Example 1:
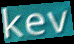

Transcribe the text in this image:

kev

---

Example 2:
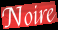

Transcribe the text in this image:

Noire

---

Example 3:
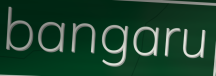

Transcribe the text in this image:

bangaru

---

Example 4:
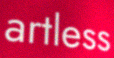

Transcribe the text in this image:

artless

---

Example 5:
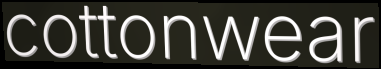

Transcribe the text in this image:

cottonwear